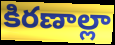
కిరణాల్లా